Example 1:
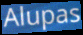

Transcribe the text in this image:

Alupas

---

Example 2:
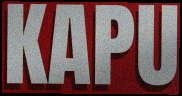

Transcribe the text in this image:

KAPU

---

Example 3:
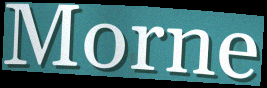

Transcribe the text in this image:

Morne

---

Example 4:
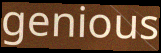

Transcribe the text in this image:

genious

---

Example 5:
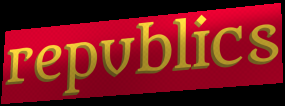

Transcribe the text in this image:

republics